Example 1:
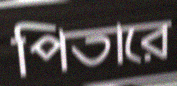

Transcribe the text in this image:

পিতারে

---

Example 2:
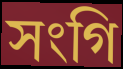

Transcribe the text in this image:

সংগি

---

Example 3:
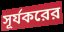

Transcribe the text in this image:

সূর্যকরের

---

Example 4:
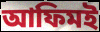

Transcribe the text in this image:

আফিমই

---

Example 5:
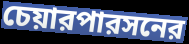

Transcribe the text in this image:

চেয়ারপারসনের